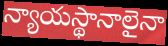
న్యాయస్థానాలైనా